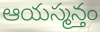
ఆయస్మన్తం